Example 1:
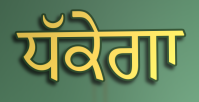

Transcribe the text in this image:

ਧੱਕੇਗਾ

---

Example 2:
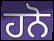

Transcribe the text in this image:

ਹਨੋ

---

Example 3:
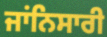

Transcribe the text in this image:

ਜਾਂਨਿਸਾਰੀ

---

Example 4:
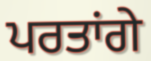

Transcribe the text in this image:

ਪਰਤਾਂਗੇ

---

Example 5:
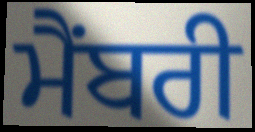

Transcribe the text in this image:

ਮੈਂਬਰੀ